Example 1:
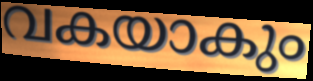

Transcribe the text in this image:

വകയാകും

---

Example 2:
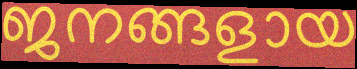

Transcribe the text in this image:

ജനങ്ങളായ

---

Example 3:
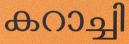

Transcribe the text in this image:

കറാച്ചി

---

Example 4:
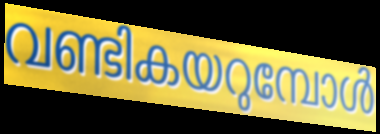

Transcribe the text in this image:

വണ്ടികയറുമ്പോൾ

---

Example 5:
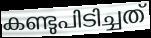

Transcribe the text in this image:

കണ്ടുപിടിച്ചത്